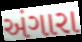
અંગારા